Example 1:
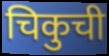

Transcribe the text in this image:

चिकुची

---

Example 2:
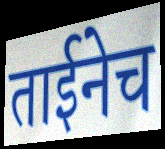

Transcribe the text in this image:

ताईनेच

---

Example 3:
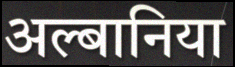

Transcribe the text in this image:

अल्बानिया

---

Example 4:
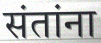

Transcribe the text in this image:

संतांना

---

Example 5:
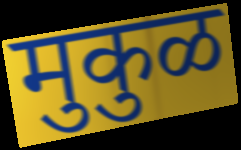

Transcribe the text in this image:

मुकुळ